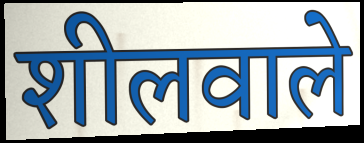
शीलवाले